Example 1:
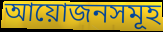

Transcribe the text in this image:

আয়োজনসমূহ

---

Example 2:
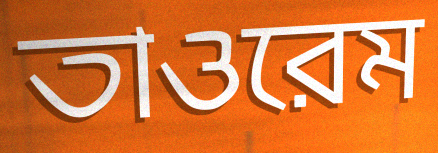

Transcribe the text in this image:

তাওরেম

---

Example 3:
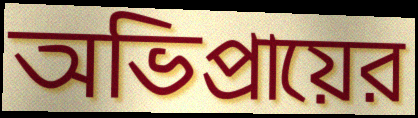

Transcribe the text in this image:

অভিপ্রায়ের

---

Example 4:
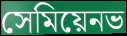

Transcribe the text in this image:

সেমিয়েনভ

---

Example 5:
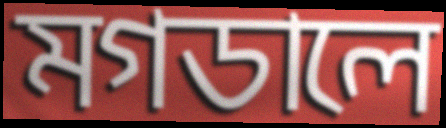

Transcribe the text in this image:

মগডালে